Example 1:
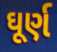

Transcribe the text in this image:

ઘૂર્ણ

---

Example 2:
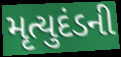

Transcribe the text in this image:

મૃત્યુદંડની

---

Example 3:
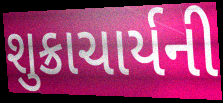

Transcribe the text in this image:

શુક્રાચાર્યની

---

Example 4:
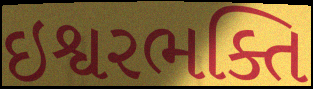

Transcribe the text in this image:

ઇશ્વરભક્તિ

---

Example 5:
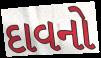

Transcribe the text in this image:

દાવનો